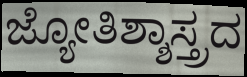
ಜ್ಯೋತಿಶ್ಶಾಸ್ತ್ರದ